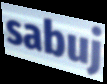
sabuj